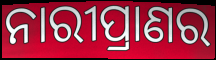
ନାରୀପ୍ରାଣର